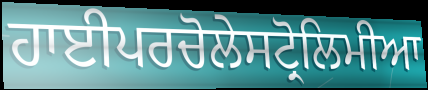
ਹਾਈਪਰਚੋਲੇਸਟ੍ਰੋਲਿਮੀਆ